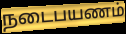
நடைபயணம்